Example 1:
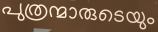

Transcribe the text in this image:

പുത്രന്മാരുടെയും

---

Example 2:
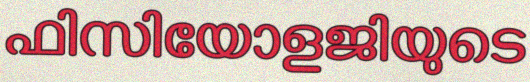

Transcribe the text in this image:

ഫിസിയോളജിയുടെ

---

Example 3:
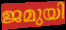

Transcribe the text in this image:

ജമുയി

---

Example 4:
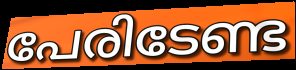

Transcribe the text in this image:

പേരിടേണ്ട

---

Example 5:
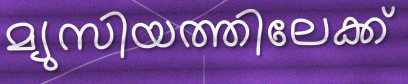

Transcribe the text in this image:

മ്യുസിയത്തിലേക്ക്